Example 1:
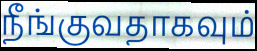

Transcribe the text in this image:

நீங்குவதாகவும்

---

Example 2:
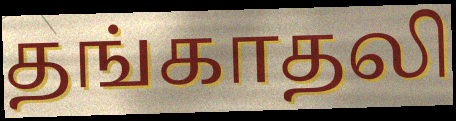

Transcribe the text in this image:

தங்காதலி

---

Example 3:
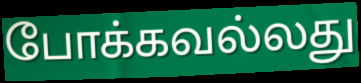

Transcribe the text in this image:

போக்கவல்லது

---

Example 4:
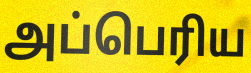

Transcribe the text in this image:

அப்பெரிய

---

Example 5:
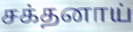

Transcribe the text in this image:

சக்தனாய்